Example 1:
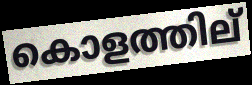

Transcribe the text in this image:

കൊളത്തില്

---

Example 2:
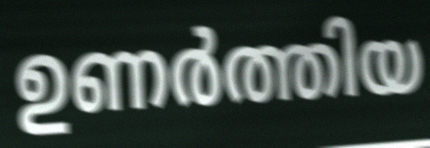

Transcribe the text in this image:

ഉണർത്തിയ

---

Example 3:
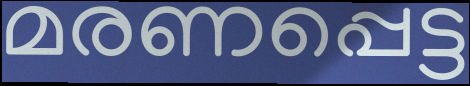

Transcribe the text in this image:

മരണപ്പെട്ട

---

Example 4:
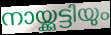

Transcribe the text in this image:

നായ്ക്കുട്ടിയും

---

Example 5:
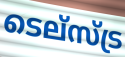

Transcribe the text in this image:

ടെല്സ്ട്ര